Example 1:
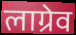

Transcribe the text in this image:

लाग्रेव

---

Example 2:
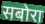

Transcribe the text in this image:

सबोरा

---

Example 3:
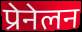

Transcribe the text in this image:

प्रेनेलन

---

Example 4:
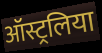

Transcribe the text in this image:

ऑस्ट्रलिया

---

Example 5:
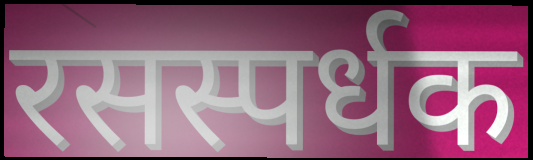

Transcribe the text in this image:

रसस्पर्धक